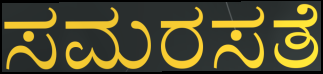
ಸಮರಸತೆ